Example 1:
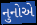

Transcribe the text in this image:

નુનોએ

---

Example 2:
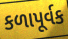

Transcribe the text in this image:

કળાપૂર્વક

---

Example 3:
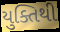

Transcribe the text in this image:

યુક્તિથી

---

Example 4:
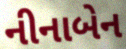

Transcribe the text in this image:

નીનાબેન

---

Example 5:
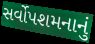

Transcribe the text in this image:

સર્વોપશમનાનું